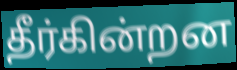
தீர்கின்றன